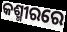
କଶ୍ମୀରରେ